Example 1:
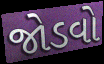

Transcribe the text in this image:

જોડવો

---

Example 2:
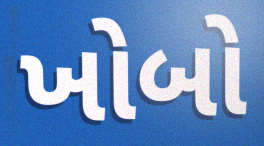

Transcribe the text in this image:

ખોબો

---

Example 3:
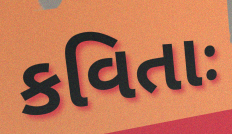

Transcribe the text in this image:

કવિતાઃ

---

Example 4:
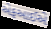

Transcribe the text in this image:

એફઆઈએ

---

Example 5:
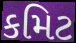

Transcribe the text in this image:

કમિટ